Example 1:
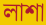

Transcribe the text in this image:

লাশা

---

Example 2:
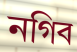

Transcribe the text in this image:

নগিব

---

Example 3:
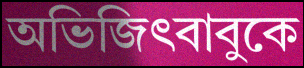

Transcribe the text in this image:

অভিজিৎবাবুকে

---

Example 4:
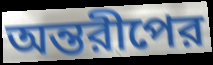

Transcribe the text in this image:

অন্তরীপের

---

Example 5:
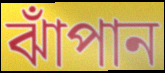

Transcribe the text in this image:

ঝাঁপান